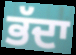
ਭੱਦਾ